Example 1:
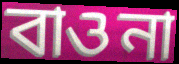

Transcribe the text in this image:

বাওনা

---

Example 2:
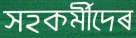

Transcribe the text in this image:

সহকৰ্মীদেৰ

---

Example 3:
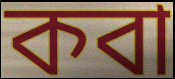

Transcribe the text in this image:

কবা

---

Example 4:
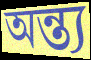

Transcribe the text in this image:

অন্ত্য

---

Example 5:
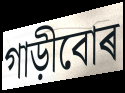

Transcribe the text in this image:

গাড়ীবোৰ